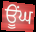
ਊਂਘ